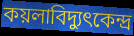
কয়লাবিদ্যুৎকেন্দ্র